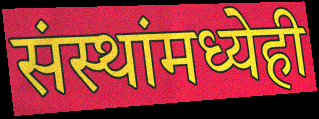
संस्थांमध्येही